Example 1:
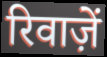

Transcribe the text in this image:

रिवाज़ें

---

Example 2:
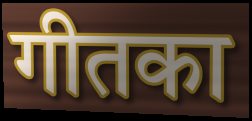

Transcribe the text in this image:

गीतका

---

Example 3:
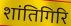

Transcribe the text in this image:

शांतिगिरि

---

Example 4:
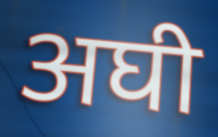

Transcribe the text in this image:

अघी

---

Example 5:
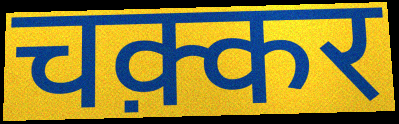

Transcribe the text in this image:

चक़्कर